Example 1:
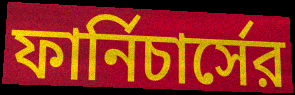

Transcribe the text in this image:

ফার্নিচার্সের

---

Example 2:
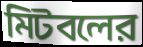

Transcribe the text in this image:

মিটবলের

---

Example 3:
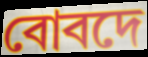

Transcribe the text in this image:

বোবদে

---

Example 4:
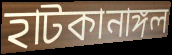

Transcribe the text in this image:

হাটকানাঙ্গল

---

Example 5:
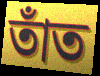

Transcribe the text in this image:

তাঁত